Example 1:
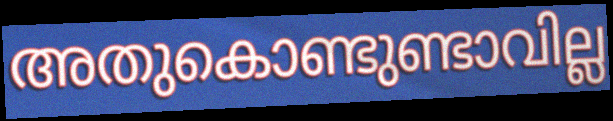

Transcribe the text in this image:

അതുകൊണ്ടുണ്ടാവില്ല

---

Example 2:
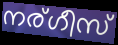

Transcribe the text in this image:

നര്ഗീസ്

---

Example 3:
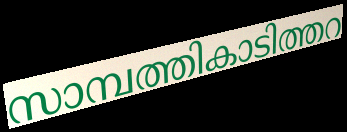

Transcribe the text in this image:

സാമ്പത്തികാടിത്തറ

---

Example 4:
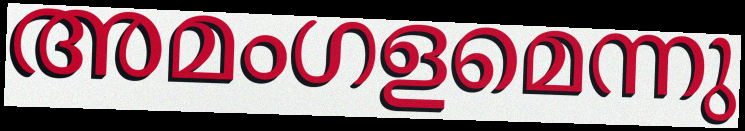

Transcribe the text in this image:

അമംഗളമെന്നു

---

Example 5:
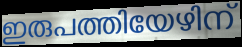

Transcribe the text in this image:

ഇരുപത്തിയേഴിന്